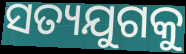
ସତ୍ୟଯୁଗକୁ